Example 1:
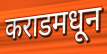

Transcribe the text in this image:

कराडमधून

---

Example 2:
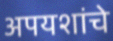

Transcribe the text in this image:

अपयशांचे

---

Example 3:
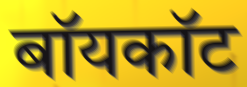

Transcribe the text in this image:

बॉयकॉट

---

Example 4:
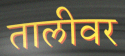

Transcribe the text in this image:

तालीवर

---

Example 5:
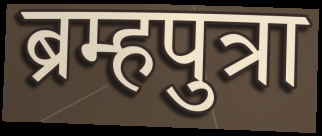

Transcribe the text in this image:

ब्रम्हपुत्रा